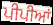
ਪੀਪੀਆਂ